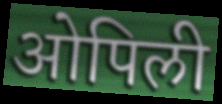
ओपिली